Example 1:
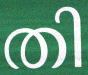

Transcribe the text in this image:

തി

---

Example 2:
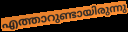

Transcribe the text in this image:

എത്താറുണ്ടായിരുന്നു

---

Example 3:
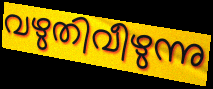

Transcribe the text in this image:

വഴുതിവീഴുന്നു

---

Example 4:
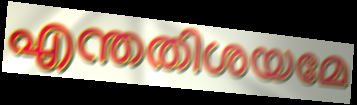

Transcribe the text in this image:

എന്തതിശയമേ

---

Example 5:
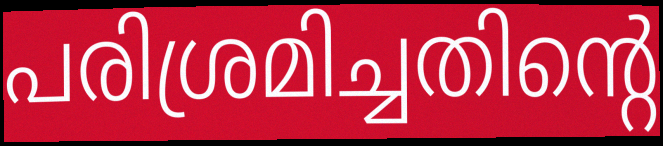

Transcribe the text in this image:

പരിശ്രമിച്ചതിന്റെ